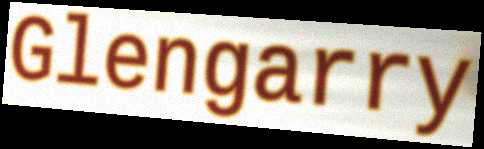
Glengarry